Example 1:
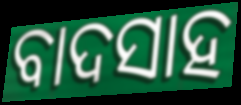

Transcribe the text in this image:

ବାଦସାହ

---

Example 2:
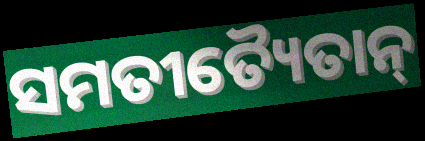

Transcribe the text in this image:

ସମତୀତ୍ୟୈତାନ୍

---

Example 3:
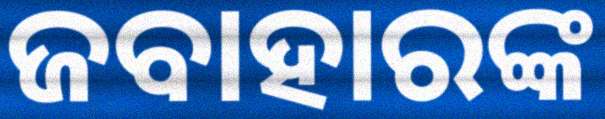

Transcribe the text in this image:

ଜବାହାରଙ୍କ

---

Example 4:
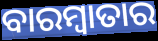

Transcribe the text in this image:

ବାରମ୍ବାତାର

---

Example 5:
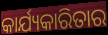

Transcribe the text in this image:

କାର୍ଯ୍ୟକାରିତାର